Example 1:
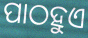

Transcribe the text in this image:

ପାଠହୁଏ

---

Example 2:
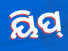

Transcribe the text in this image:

ୟିପ୍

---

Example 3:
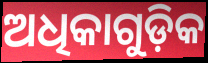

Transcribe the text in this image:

ଅଧିକାଗୁଡ଼ିକ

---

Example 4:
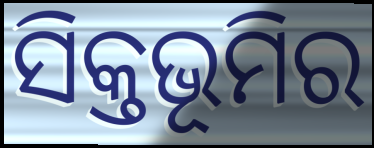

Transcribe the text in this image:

ସିକ୍ତଭୂମିର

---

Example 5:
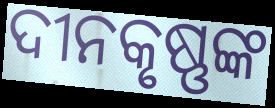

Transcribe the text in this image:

ଦୀନକୃଷ୍ଣଙ୍କ